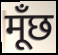
मूँछ